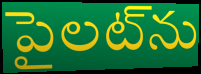
పైలట్‌ను